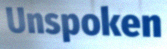
Unspoken